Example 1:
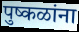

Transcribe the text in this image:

पुष्कळांना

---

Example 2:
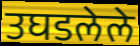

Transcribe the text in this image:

उघडलेले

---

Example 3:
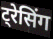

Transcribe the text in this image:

ट्रेसिंग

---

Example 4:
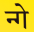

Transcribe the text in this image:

न्गे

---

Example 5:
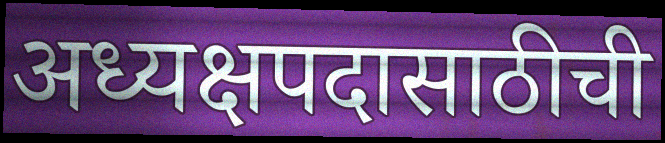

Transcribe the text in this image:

अध्यक्षपदासाठीची